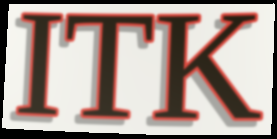
ITK